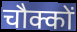
चौक्कों